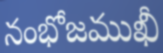
నంభోజముఖీ